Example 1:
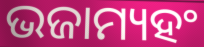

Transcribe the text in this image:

ଭଜାମ୍ୟହଂ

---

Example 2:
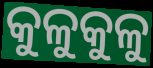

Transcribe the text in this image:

କୁଳୁକୁଳୁ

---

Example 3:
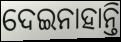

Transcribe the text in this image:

ଦେଇନାହାନ୍ତି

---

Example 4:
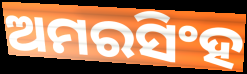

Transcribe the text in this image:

ଅମରସିଂହ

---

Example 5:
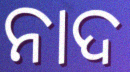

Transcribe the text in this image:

ନାଦ